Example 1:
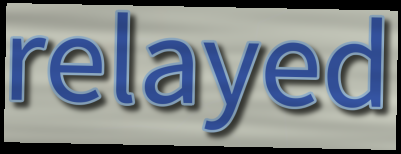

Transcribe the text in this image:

relayed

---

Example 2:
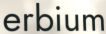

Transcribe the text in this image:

erbium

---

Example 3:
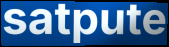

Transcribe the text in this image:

satpute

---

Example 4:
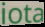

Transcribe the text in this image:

iota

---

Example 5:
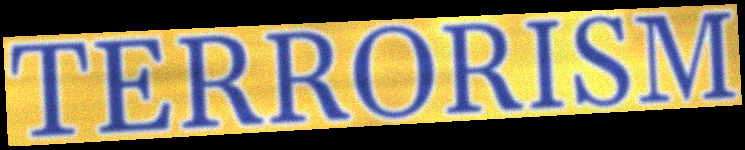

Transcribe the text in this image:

TERRORISM